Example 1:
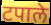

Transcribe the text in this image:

टपाले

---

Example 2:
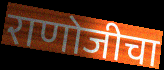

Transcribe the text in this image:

राणोजीचा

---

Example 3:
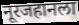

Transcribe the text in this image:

नूरजहानला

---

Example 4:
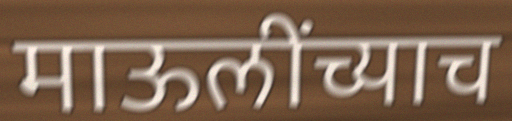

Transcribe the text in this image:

माऊलींच्याच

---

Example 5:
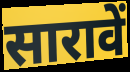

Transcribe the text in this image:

सारावें